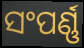
ସଂପର୍ଣ୍ଣ